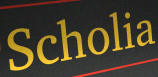
Scholia